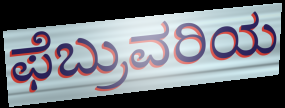
ಫೆಬ್ರುವರಿಯ